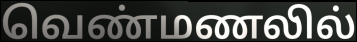
வெண்மணலில்